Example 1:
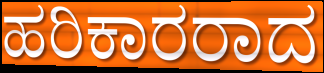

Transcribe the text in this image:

ಹರಿಕಾರರಾದ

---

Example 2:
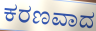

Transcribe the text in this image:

ಕರಣವಾದ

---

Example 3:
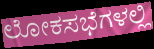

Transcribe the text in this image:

ಲೋಕಸಭೆಗಳಲ್ಲಿ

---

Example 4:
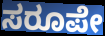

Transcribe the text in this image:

ಸರೂಪೇ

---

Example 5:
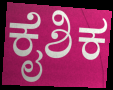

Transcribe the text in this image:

ಕೈಶಿಕ